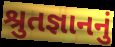
શ્રુતજ્ઞાનનું